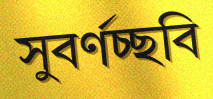
সুবর্ণচ্ছবি